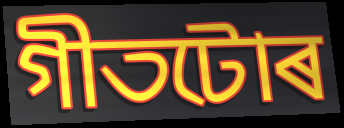
গীতটোৰ